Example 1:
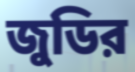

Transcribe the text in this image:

জুডির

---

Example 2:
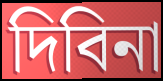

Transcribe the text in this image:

দিবিনা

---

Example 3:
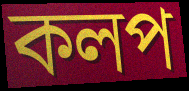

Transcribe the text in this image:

কলপ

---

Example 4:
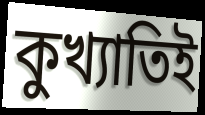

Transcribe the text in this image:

কুখ্যাতিই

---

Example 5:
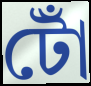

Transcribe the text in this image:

টোঁ